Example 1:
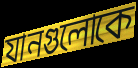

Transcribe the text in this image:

যানগুলোকে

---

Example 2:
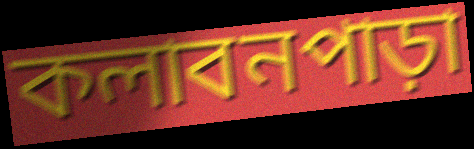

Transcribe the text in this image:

কলাবনপাড়া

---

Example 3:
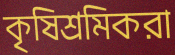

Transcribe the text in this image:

কৃষিশ্রমিকরা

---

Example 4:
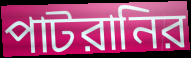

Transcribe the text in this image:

পাটরানির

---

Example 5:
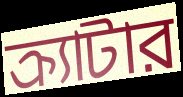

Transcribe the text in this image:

ক্র্যাটার